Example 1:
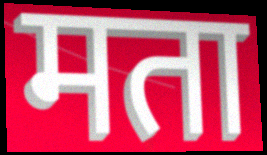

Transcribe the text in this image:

मता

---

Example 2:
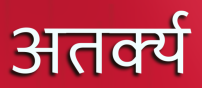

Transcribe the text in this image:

अतर्क्य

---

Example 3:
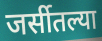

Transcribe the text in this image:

जर्सीतल्या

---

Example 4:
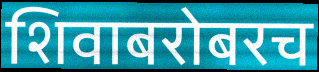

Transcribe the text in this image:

शिवाबरोबरच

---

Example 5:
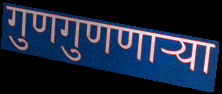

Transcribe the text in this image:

गुणगुणणाऱ्या